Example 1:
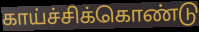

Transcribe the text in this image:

காய்ச்சிக்கொண்டு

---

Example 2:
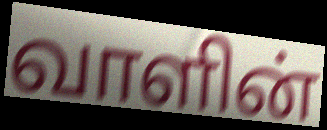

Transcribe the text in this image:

வாளின்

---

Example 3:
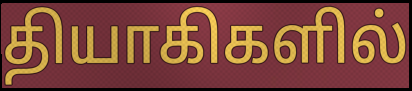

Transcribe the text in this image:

தியாகிகளில்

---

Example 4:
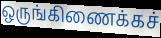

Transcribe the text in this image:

ஒருங்கிணைக்கச்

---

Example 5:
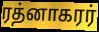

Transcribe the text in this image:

ரத்னாகரர்